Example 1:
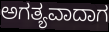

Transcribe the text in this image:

ಅಗತ್ಯವಾದಾಗ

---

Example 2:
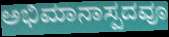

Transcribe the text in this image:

ಅಭಿಮಾನಾಸ್ಪದವೂ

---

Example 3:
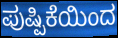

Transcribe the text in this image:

ಪುಷ್ಪಿಕೆಯಿಂದ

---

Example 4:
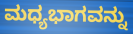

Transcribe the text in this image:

ಮಧ್ಯಭಾಗವನ್ನು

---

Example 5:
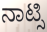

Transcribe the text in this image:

ನಾಟ್ಸಿ